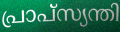
പ്രാപ്സ്യന്തി